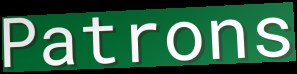
Patrons